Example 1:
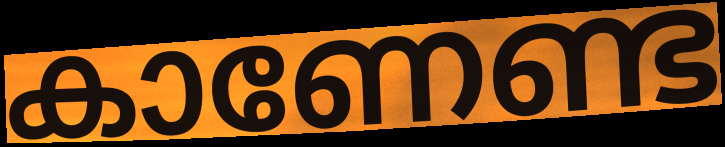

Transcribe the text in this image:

കാണേണ്ട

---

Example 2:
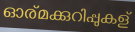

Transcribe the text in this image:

ഓര്മക്കുറിപ്പുകള്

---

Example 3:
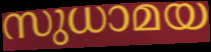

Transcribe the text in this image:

സുധാമയ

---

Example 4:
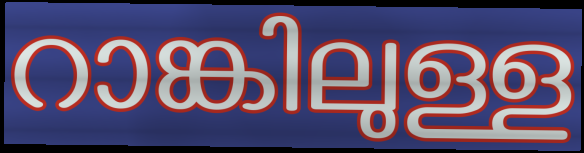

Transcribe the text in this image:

റാങ്കിലുള്ള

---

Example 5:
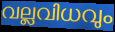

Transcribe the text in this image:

വല്ലവിധവും